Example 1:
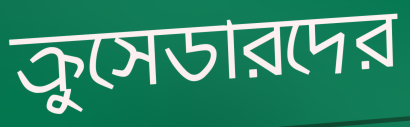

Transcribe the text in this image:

ক্রুসেডারদের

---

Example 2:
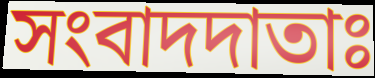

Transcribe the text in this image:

সংবাদদাতাঃ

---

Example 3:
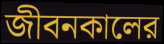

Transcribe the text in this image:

জীবনকালের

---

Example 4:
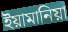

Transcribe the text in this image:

ইয়ামানিয়া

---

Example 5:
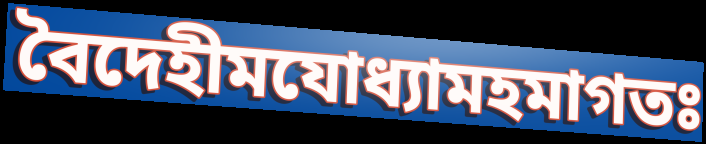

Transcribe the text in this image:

বৈদেহীমযোধ্যামহমাগতঃ